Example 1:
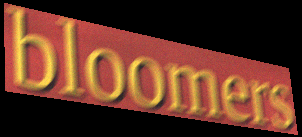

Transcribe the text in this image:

bloomers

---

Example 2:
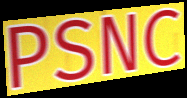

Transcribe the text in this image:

PSNC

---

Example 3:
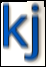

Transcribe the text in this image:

kj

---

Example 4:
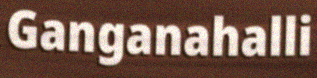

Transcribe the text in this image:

Ganganahalli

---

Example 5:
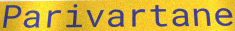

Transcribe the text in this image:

Parivartane